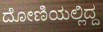
ದೋಣಿಯಲ್ಲಿದ್ದ